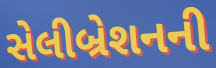
સેલીબ્રેશનની